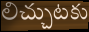
లిచ్చుటకు